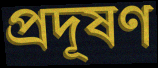
প্ৰদূষণ